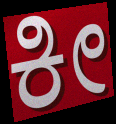
ಕೀ